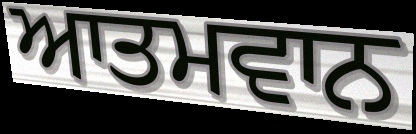
ਆਤਮਵਾਨ